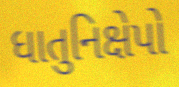
ધાતુનિક્ષેપો